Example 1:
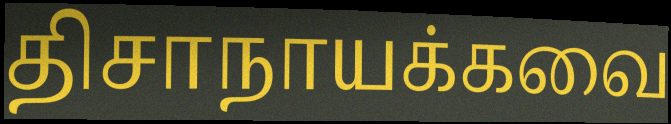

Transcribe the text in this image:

திசாநாயக்கவை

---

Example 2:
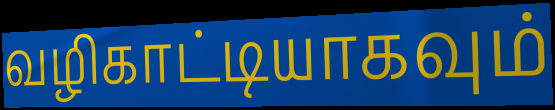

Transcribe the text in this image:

வழிகாட்டியாகவும்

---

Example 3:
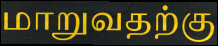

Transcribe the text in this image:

மாறுவதற்கு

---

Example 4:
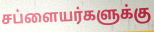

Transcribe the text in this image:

சப்ளையர்களுக்கு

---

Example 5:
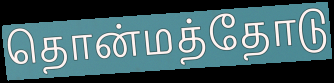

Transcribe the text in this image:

தொன்மத்தோடு